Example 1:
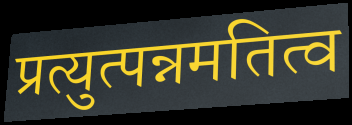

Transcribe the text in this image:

प्रत्युत्पन्नमतित्व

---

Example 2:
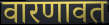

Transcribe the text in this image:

वारणावत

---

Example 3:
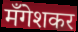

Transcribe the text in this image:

मँगेशकर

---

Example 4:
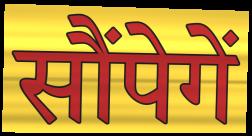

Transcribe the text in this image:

सौंपेगें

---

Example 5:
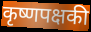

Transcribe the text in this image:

कृष्णपक्षकी